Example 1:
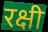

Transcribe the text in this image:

रक्षी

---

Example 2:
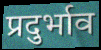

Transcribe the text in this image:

प्रदुर्भाव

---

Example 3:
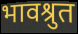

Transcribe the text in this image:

भावश्रुत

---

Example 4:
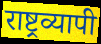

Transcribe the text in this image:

राष्ट्रव्यापी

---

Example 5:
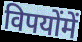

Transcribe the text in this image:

विपयोंमें